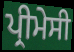
ਪ੍ਰੀਮੇਸੀ